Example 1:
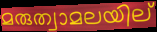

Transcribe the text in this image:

മരുത്വാമലയില്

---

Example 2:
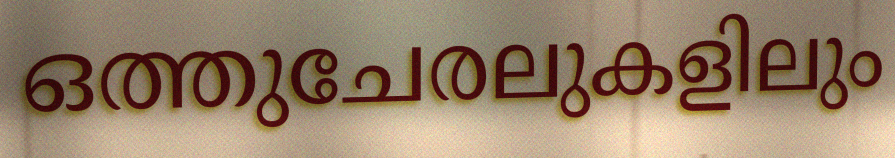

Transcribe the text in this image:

ഒത്തുചേരലുകളിലും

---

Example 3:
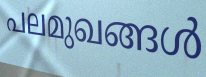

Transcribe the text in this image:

പലമുഖങ്ങൾ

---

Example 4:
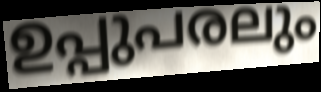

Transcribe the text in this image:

ഉപ്പുപരലും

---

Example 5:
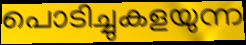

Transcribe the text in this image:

പൊടിച്ചുകളയുന്ന